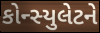
કોન્સ્યુલેટને